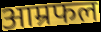
आम्रफल